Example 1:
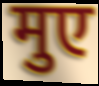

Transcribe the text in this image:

मुए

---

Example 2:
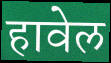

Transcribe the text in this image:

हावेल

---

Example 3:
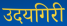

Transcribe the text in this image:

उदयगिरी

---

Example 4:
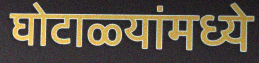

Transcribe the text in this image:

घोटाळ्यांमध्ये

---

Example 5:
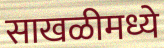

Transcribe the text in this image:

साखळीमध्ये